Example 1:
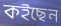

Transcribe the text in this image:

কইছেন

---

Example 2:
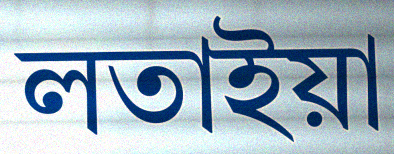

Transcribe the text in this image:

লতাইয়া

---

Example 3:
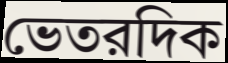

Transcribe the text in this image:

ভেতরদিক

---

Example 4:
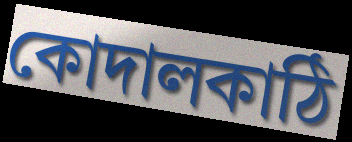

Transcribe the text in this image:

কোদালকাঠি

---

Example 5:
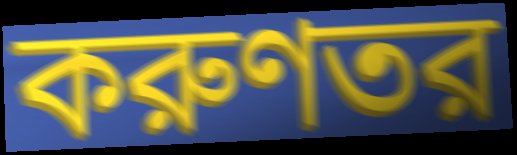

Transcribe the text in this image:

করুণতর